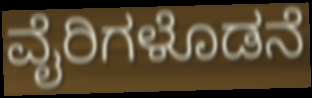
ವೈರಿಗಳೊಡನೆ